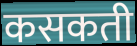
कसकती